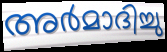
അർമാദിച്ചു